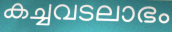
കച്ചവടലാഭം